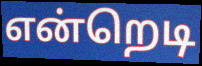
என்றெடி